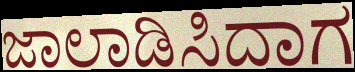
ಜಾಲಾಡಿಸಿದಾಗ